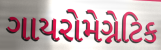
ગાયરોમેગ્નેટિક